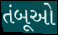
તંબૂઓ